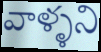
వాళ్ళని